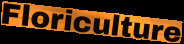
Floriculture